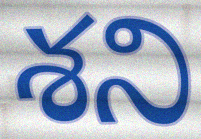
శని